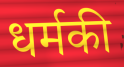
धर्मकी